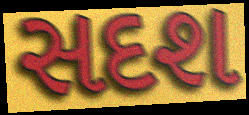
સદશ